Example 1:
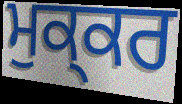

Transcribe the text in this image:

ਮੁਕ੍ਕਰ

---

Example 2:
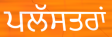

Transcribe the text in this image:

ਪਲੱਸਤਰਾਂ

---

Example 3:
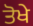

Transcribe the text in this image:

ਤੋਖੇ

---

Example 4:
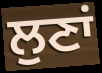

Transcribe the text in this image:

ਲੁਣਾਂ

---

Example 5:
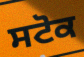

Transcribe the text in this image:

ਸਟੋਕ